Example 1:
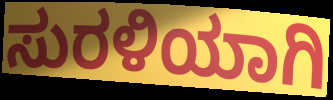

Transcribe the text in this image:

ಸುರಳಿಯಾಗಿ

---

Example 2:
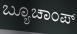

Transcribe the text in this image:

ಬ್ಯೂಚಾಂಪ್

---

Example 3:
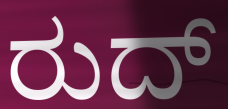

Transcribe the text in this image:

ರುದ್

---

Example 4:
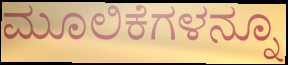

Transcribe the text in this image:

ಮೂಲಿಕೆಗಳನ್ನೂ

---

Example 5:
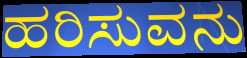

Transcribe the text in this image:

ಹರಿಸುವನು